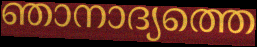
ഞാനാദ്യത്തെ